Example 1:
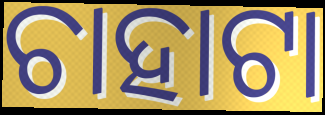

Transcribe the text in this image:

ଚାହାଟା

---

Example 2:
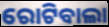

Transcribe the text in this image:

ରୋଟିବାଲା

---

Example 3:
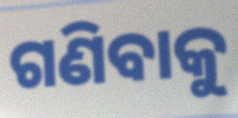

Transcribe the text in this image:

ଗଣିବାକୁ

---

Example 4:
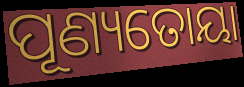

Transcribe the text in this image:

ପୂଣ୍ୟତୋୟା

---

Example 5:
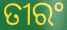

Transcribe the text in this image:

ତୀରଂ